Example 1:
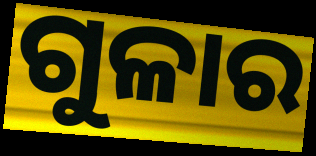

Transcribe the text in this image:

ଗୁଳାର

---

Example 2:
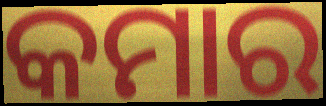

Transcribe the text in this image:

କମାର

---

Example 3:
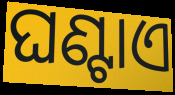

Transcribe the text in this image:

ଘଣ୍ଟାଏ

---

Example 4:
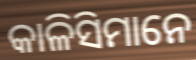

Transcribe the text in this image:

କାଳିସିମାନେ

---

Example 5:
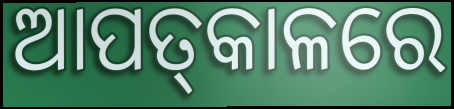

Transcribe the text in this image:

ଆପତ୍‌କାଳରେ